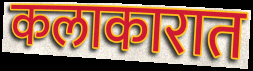
कलाकारात